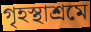
গৃহস্থাশ্রমে